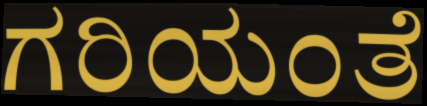
ಗರಿಯಂತೆ